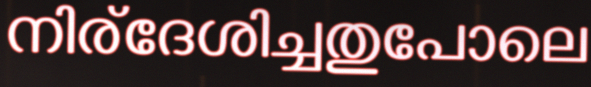
നിര്ദേശിച്ചതുപോലെ